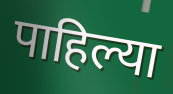
पाहिल्या